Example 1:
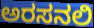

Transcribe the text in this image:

ಅರಸನಲಿ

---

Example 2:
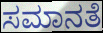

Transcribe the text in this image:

ಸಮಾನತೆ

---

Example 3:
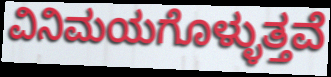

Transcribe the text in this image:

ವಿನಿಮಯಗೊಳ್ಳುತ್ತವೆ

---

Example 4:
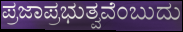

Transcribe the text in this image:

ಪ್ರಜಾಪ್ರಭುತ್ವವೆಂಬುದು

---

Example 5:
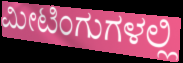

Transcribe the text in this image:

ಮೀಟಿಂಗುಗಳಲ್ಲಿ